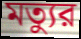
মত্যুর